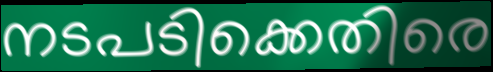
നടപടിക്കെതിരെ